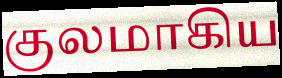
குலமாகிய